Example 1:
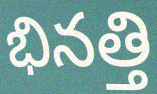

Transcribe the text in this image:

భినత్తి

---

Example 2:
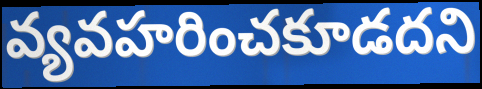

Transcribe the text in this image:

వ్యవహరించకూడదని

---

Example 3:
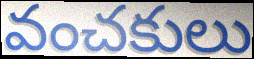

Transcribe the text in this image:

వంచకులు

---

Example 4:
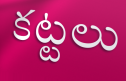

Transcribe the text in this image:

కట్టలు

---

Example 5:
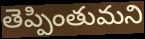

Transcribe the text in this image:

తెప్పింతుమని